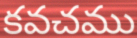
కవచము